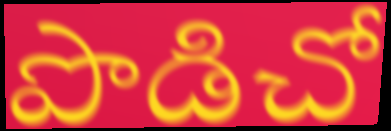
పొడిచో